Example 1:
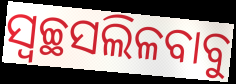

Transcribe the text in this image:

ସ୍ୱଚ୍ଛସଲିଳବାବୁ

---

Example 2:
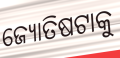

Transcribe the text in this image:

ଜ୍ୟୋତିଷଟାକୁ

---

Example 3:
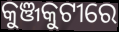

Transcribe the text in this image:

କୁଞ୍ଜକୁଟୀରେ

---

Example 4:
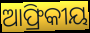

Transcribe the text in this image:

ଆଫ୍ରିକୀୟ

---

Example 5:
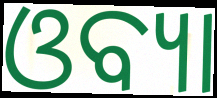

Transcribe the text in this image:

ଓବ୍ୟା